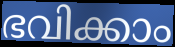
ഭവിക്കാം